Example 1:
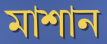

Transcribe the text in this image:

মাশান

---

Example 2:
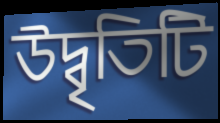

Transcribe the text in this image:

উদ্বৃতিটি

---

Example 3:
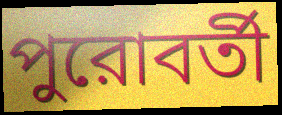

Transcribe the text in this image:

পুরোবর্তী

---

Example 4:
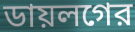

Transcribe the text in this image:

ডায়লগের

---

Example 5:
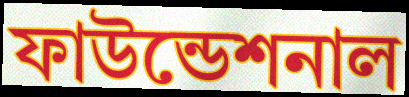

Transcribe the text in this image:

ফাউন্ডেশনাল